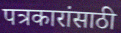
पत्रकारांसाठी